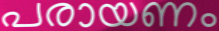
പരായണം